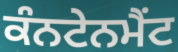
ਕੰਨਟੇਨਮੈਂਟ